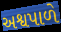
અશ્વપાળે